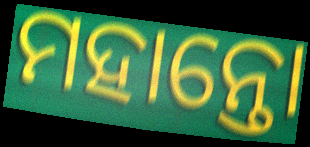
ମହାନ୍ତୋ